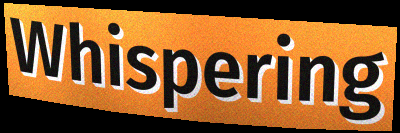
Whispering